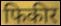
फिकीर